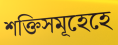
শক্তিসমূহেহে